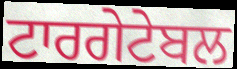
ਟਾਰਗੇਟੇਬਲ